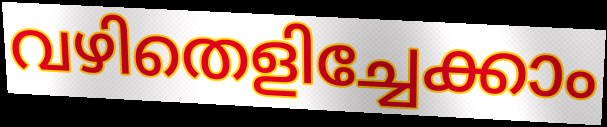
വഴിതെളിച്ചേക്കാം